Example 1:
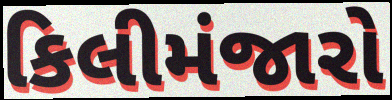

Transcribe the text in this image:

કિલીમંજારો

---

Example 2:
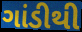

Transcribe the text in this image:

ગાંડીથી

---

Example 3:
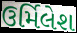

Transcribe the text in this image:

ઉર્મિલેશ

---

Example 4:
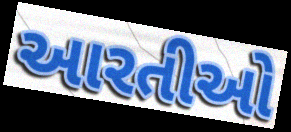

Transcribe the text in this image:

આરતીઓ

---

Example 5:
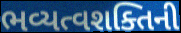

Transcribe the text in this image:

ભવ્યત્વશક્તિની